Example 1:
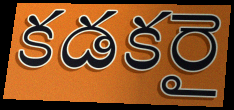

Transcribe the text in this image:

కడకరై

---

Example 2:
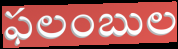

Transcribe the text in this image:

ఫలంబుల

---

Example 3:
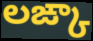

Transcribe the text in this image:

లఙ్కా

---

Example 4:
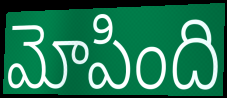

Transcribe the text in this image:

మోపింది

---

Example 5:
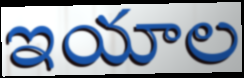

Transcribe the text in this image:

ఇయాల